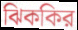
ঝিককির